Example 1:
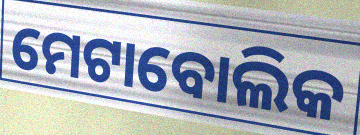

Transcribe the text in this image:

ମେଟାବୋଲିକ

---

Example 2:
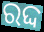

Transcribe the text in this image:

ରଦ୍ଦ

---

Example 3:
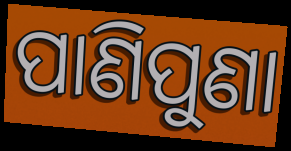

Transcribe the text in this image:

ପାଣିପୁଣା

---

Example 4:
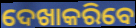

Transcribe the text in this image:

ଦେଖାକରିବେ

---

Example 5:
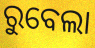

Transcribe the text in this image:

ରୁବେଲା